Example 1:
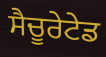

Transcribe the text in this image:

ਸੈਚੂਰੇਟੇਡ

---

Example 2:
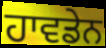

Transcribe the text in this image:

ਹਾਵਡੇਨ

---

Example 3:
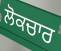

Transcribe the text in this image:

ਲੋਕਚਾਰ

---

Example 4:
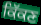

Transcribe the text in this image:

ਕਿੱਕਣ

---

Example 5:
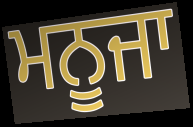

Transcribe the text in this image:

ਮਨੂਜਾ